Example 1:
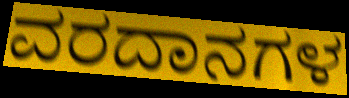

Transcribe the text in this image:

ವರದಾನಗಳ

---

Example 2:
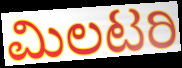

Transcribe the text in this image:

ಮಿಲಟರಿ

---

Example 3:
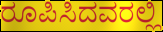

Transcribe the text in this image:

ರೂಪಿಸಿದವರಲ್ಲಿ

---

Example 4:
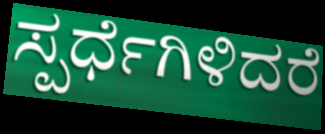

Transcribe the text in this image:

ಸ್ಪರ್ಧೆಗಿಳಿದರೆ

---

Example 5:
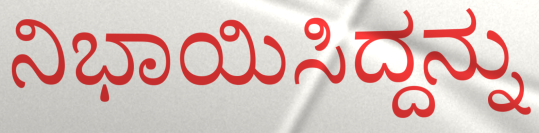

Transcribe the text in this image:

ನಿಭಾಯಿಸಿದ್ದನ್ನು